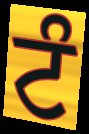
ਟੰ